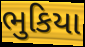
ભુકિયા